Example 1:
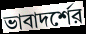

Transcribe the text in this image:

ভাবাদর্শের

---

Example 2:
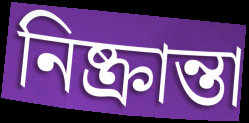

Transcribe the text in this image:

নিষ্ক্রান্তা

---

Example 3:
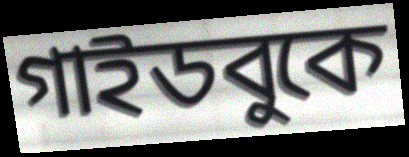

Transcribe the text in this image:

গাইডবুকে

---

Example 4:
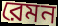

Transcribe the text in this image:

রেমন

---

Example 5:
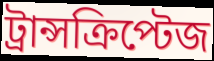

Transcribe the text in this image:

ট্রান্সক্রিপ্টেজ